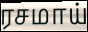
ரசமாய்